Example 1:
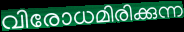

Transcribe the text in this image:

വിരോധമിരിക്കുന്ന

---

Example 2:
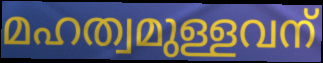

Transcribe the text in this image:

മഹത്വമുള്ളവന്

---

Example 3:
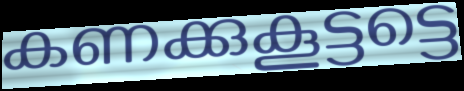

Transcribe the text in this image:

കണക്കുകൂട്ടട്ടെ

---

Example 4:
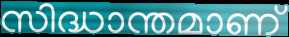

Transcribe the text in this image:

സിദ്ധാന്തമാണ്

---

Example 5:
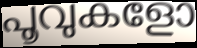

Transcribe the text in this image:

പൂവുകളോ